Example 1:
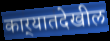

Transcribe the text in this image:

कार्यातदेखील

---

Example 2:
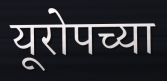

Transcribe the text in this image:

यूरोपच्या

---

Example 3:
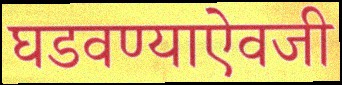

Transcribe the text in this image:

घडवण्याऐवजी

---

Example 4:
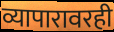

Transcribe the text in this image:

व्यापारावरही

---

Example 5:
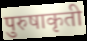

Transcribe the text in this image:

पुरुषाकृती